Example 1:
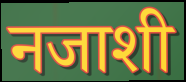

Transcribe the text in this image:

नजाशी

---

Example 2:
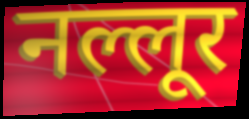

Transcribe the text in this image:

नल्लूर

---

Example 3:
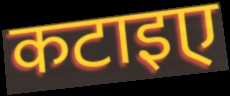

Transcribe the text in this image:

कटाइए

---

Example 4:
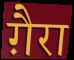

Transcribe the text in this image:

ग़ैरा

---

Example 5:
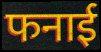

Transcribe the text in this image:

फनाई